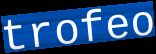
trofeo